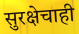
सुरक्षेचाही